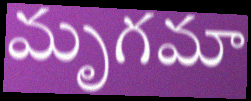
మృగమా